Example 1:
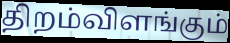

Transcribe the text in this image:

திறம்விளங்கும்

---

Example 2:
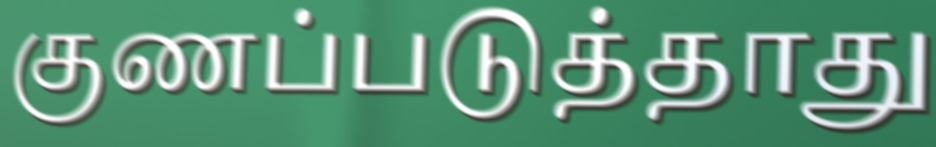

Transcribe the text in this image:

குணப்படுத்தாது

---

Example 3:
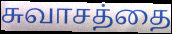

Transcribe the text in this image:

சுவாசத்தை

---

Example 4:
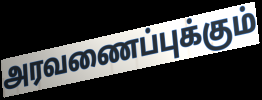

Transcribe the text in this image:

அரவணைப்புக்கும்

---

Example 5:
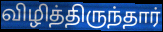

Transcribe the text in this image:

விழித்திருந்தார்